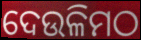
ଦେଉଳିମଠ